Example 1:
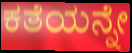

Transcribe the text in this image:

ಕತೆಯನ್ನೇ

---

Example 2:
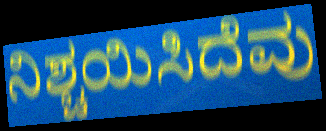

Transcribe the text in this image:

ನಿಶ್ಚಯಿಸಿದೆವು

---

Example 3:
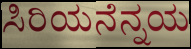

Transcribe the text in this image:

ಸಿರಿಯನೆನ್ನಯ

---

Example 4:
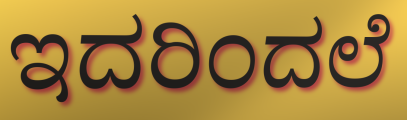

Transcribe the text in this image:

ಇದರಿಂದಲೆ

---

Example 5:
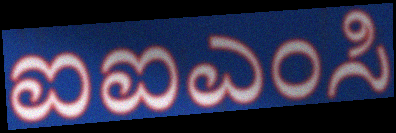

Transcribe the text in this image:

ಐಐಎಂಸಿ